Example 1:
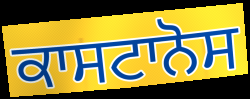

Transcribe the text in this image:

ਕਾਸਟਾਨੋਸ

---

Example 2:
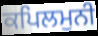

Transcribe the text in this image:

ਕਪਿਲਮੁਨੀ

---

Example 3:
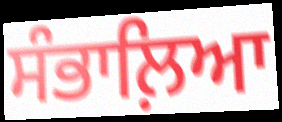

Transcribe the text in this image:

ਸੰਭਾਲ਼ਿਆ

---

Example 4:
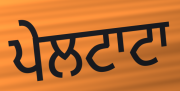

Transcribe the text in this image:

ਪੇਲਟਾਟਾ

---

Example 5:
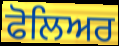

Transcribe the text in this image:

ਫੋਲਿਅਰ